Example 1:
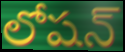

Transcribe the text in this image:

లోషన్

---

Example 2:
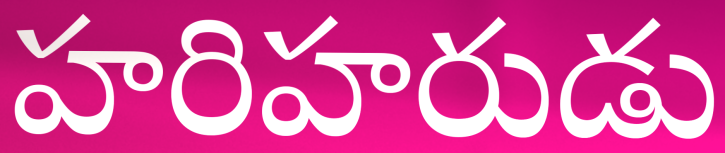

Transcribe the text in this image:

హరిహరుడు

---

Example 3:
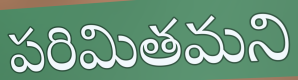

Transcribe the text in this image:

పరిమితమని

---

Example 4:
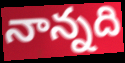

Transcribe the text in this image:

నాన్నది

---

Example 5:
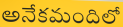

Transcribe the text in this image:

అనేకమందిలో